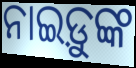
ନାଇଡ଼ୁଙ୍କ